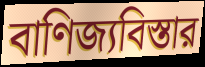
বাণিজ্যবিস্তার